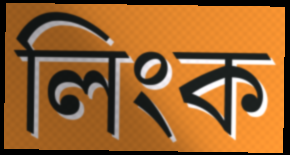
লিংক